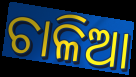
ଚାଳିଆ